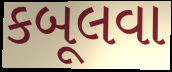
કબૂલવા